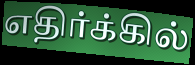
எதிர்க்கில்